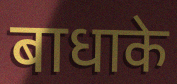
बाधाके